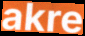
akre